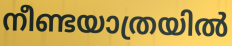
നീണ്ടയാത്രയിൽ